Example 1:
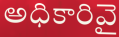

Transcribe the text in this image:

అధికారివై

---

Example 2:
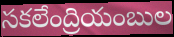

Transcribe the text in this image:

సకలేంద్రియంబుల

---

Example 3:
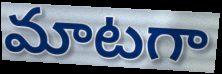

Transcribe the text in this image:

మాటగా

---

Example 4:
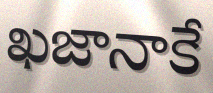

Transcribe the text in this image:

ఖజానాకే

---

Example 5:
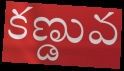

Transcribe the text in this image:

కణ్డువ